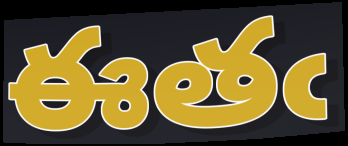
ఈతఁ